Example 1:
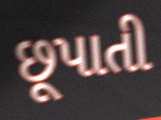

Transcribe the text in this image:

છૂપાતી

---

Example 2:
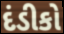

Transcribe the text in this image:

દંડીકો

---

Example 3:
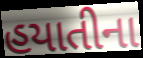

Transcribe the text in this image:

હયાતીના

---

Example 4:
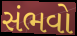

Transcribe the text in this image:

સંભવો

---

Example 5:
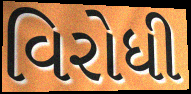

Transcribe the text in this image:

વિરોધી